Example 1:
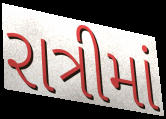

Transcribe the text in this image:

રાત્રીમાં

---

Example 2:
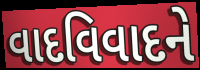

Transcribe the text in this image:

વાદવિવાદને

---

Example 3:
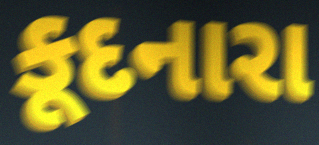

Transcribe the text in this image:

કૂદનારા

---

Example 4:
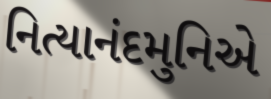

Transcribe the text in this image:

નિત્યાનંદમુનિએ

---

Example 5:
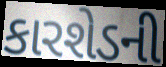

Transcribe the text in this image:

કારશેડની